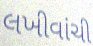
લખીવાંચી